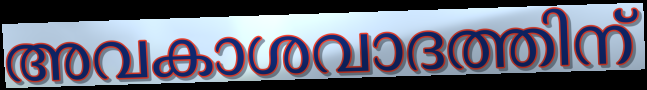
അവകാശവാദത്തിന്